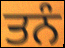
ਤਨੰ